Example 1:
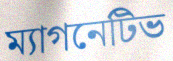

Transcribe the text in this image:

ম্যাগনেটিভ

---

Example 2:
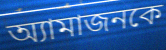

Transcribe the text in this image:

অ্যামাজনকে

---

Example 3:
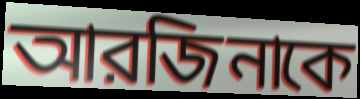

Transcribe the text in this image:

আরজিনাকে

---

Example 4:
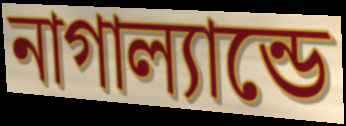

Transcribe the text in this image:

নাগাল্যান্ডে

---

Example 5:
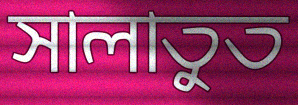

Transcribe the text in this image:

সালাতুত